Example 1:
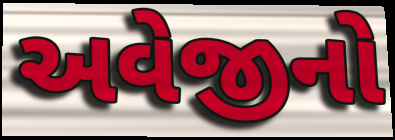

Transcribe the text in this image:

અવેજીનો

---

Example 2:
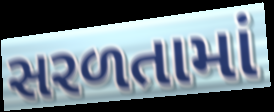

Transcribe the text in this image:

સરળતામાં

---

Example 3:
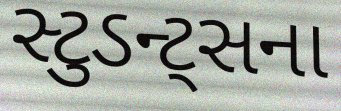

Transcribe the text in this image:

સ્ટુડન્ટ્સના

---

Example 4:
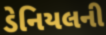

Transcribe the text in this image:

ડેનિયલની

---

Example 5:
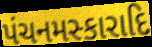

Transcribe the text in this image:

પંચનમસ્કારાદિ